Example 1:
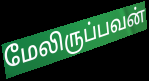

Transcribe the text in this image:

மேலிருப்பவன்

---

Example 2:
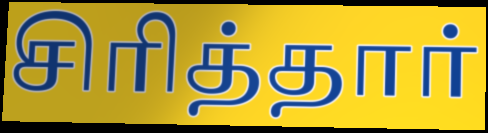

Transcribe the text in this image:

சிரித்தார்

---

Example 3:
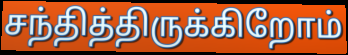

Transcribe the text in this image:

சந்தித்திருக்கிறோம்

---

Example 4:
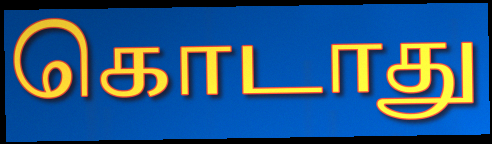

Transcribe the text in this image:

கொடாது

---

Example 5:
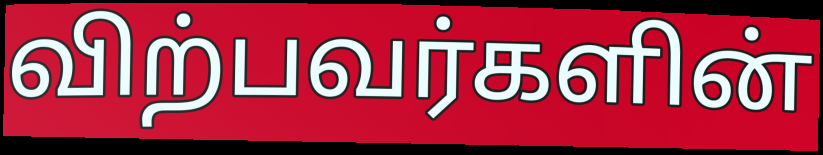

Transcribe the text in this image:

விற்பவர்களின்